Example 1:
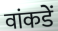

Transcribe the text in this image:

वांकडें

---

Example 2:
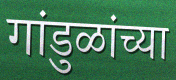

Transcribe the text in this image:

गांडुळांच्या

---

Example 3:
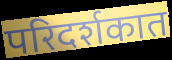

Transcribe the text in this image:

परिदर्शकात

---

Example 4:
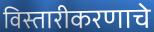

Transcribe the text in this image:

विस्तारीकरणाचे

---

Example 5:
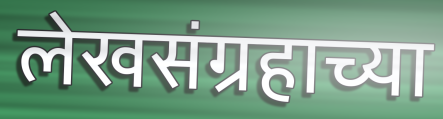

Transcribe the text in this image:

लेखसंग्रहाच्या